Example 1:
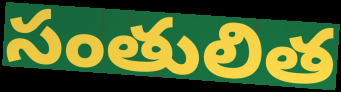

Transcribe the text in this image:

సంతులిత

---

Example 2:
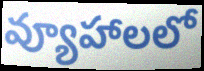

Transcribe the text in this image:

వ్యూహాలలో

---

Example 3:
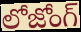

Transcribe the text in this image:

లోజోంగ్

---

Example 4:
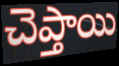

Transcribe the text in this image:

చెప్తాయి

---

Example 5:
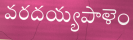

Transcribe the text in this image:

వరదయ్యపాళెం